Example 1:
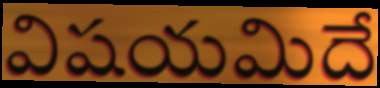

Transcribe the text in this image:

విషయమిదే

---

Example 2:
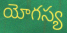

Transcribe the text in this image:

యోగస్య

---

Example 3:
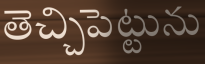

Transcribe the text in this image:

తెచ్చిపెట్టును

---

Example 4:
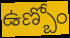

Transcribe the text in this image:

ఉణ్బోం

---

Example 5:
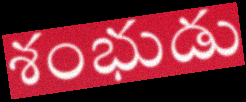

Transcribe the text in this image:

శంభుడు